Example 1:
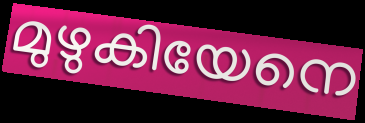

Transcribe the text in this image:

മുഴുകിയേനെ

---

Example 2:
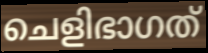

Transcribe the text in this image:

ചെളിഭാഗത്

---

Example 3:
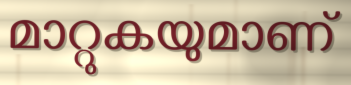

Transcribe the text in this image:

മാറ്റുകയുമാണ്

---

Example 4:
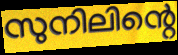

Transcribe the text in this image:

സുനിലിന്റെ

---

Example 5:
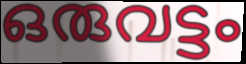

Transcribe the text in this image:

ഒരുവട്ടം